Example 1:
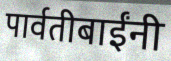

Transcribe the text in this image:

पार्वतीबाईंनी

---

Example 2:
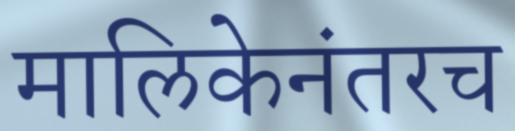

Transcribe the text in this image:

मालिकेनंतरच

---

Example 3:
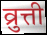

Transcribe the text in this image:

व्रुत्ती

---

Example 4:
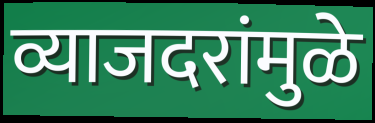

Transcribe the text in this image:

व्याजदरांमुळे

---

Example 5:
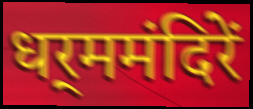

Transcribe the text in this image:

धर्ममंदिरें